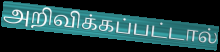
அறிவிக்கப்பட்டால்